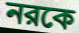
নরকে